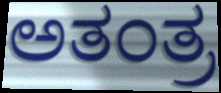
ಅತಂತ್ರ